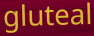
gluteal